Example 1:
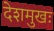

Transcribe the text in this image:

देशमुखः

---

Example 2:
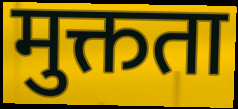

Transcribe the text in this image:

मुक्तता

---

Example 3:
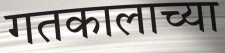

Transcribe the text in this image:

गतकालाच्या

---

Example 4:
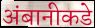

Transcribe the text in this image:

अंबानीकडे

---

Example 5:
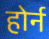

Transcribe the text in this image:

होर्न